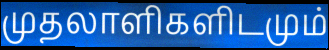
முதலாளிகளிடமும்